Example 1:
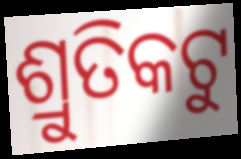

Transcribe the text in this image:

ଶ୍ରୁତିକଟୁ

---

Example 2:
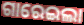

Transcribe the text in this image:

ଗାରେଇଲା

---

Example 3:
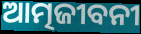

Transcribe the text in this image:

ଆତ୍ମଜୀବନୀ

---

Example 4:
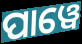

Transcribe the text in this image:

ପାୱେ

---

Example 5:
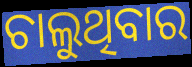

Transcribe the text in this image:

ଚାଲୁଥିବାର